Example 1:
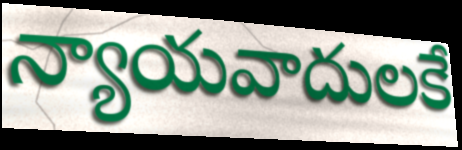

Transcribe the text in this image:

న్యాయవాదులకే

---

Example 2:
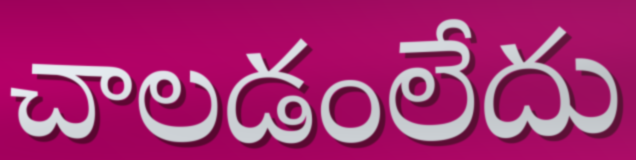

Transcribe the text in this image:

చాలడంలేదు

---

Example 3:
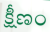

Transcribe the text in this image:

క్షీణం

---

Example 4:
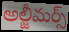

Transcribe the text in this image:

అల్జీమర్స్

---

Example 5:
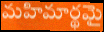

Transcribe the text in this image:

మహిమార్థమై